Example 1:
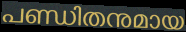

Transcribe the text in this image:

പണ്ഡിതനുമായ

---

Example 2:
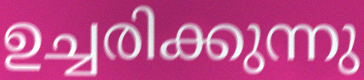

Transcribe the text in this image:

ഉച്ചരിക്കുന്നു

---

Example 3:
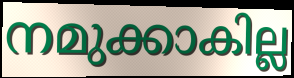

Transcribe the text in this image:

നമുക്കാകില്ല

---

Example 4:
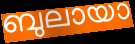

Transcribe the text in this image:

ബുലായാ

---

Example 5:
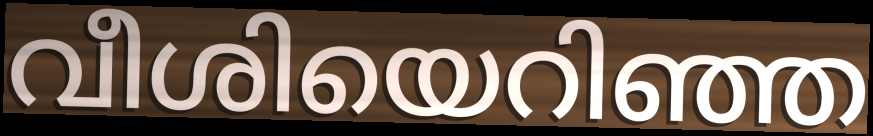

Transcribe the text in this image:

വീശിയെറിഞ്ഞ